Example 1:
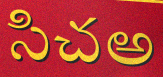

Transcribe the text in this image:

సిచఅ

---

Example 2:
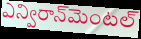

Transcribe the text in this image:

ఎన్విరాన్‌మెంటల్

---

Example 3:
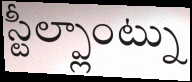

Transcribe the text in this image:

స్టీల్ప్లాంట్ను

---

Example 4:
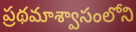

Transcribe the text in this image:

ప్రథమాశ్వాసంలోని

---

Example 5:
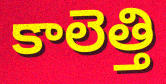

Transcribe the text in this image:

కాలెత్తి